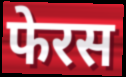
फेरस